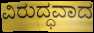
ವಿರುದ್ಧವಾದ